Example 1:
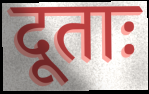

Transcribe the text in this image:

दूताः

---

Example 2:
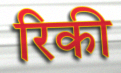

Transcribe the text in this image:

रिकी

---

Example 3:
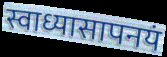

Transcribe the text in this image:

स्वाध्यासापनयं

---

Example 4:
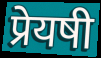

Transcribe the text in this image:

प्रेयषी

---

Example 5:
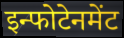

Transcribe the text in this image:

इन्फोटेनमेंट